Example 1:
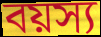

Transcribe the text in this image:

বয়স্য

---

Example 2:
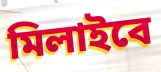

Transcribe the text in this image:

মিলাইবে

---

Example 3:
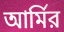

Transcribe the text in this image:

আর্মির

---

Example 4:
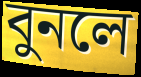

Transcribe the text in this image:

বুনলে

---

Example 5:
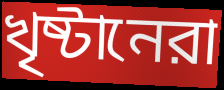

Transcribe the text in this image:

খৃষ্টানেরা